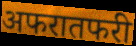
अफरातफरी